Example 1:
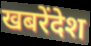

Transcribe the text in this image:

खबरेंदेश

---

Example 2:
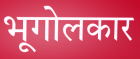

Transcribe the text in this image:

भूगोलकार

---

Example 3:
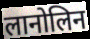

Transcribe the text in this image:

लानोलिन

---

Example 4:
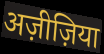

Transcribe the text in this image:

अज़ीज़िया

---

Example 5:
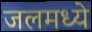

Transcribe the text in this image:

जलमध्ये